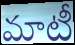
మాటీ